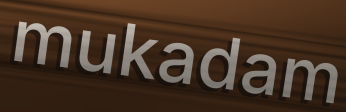
mukadam